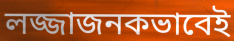
লজ্জাজনকভাবেই